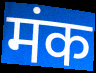
मंक